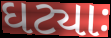
ઘટ્યાઃ